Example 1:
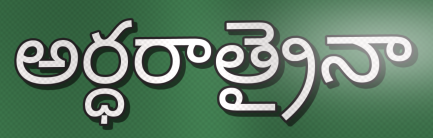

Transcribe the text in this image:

అర్ధరాత్రైనా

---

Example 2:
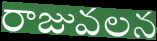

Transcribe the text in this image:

రాజువలన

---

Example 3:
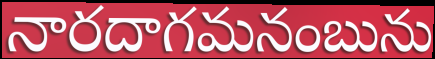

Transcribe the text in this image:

నారదాగమనంబును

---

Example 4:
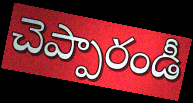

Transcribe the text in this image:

చెప్పారండీ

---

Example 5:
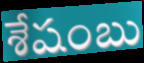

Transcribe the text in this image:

శేషంబు